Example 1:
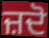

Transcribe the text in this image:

ਜ਼ਦੋ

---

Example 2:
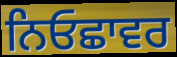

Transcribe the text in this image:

ਨਿਓਛਾਵਰ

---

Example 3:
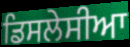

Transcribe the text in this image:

ਡਿਸਲੇਸੀਆ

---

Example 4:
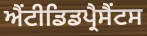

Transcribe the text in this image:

ਐਂਟੀਡਿਡਪ੍ਰੈਸੈਂਟਸ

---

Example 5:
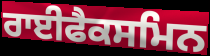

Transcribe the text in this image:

ਰਾਈਫੈਕਸਮਿਨ